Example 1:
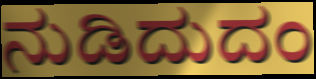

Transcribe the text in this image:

ನುಡಿದುದಂ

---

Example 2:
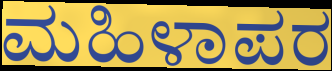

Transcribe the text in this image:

ಮಹಿಳಾಪರ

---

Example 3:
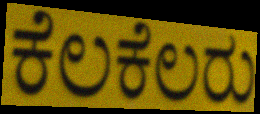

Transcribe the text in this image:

ಕೆಲಕೆಲರು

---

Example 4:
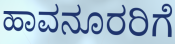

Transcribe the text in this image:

ಹಾವನೂರರಿಗೆ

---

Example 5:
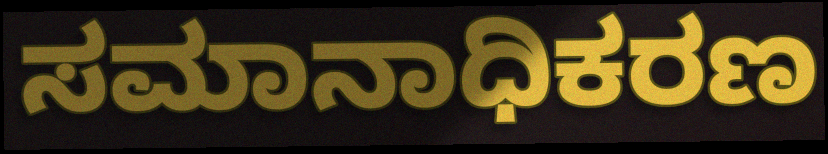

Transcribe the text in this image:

ಸಮಾನಾಧಿಕರಣ